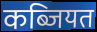
कब्जियत